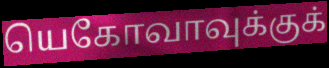
யெகோவாவுக்குக்